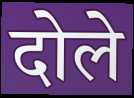
दोले